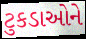
ટુકડાઓને